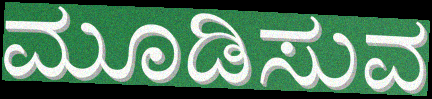
ಮೂಡಿಸುವ